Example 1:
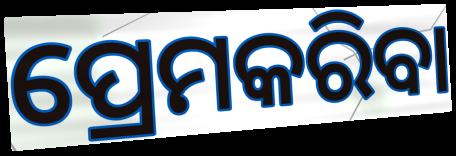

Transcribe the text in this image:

ପ୍ରେମକରିବା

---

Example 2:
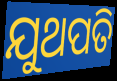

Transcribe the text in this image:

ଯୁଥପତି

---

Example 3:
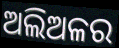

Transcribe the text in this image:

ଅଲିଅଳର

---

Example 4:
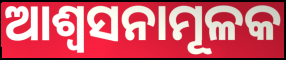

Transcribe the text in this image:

ଆଶ୍ୱସନାମୂଳକ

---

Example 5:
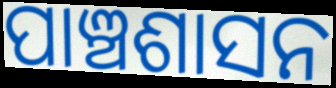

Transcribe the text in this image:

ପାଞ୍ଚଶାସନ